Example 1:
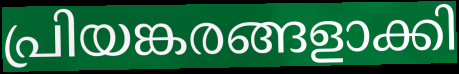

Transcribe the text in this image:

പ്രിയങ്കരങ്ങളാക്കി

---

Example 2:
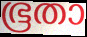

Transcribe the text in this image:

ഭൂതാ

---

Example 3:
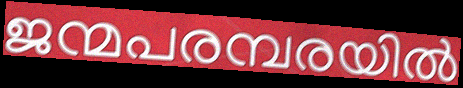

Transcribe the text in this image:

ജന്മപരമ്പരയിൽ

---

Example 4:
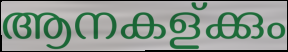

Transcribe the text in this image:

ആനകള്ക്കും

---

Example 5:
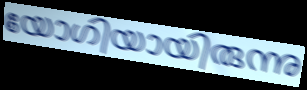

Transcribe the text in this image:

യോഗിയായിരുന്നു